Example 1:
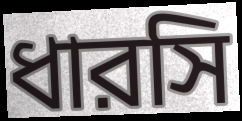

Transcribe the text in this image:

ধারসি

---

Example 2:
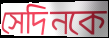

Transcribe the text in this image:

সেদিনকে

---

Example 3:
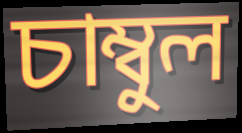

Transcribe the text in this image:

চাম্বুল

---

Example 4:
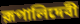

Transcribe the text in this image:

রূপালিদেবী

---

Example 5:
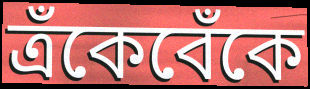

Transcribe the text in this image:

ত্রঁকেবেঁকে